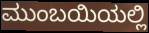
ಮುಂಬಯಿಯಲ್ಲಿ